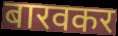
बारवकर